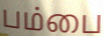
பம்பை